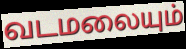
வடமலையும்